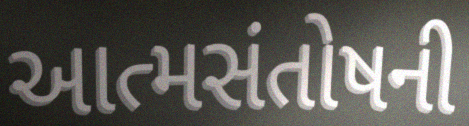
આત્મસંતોષની